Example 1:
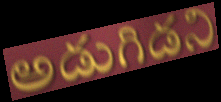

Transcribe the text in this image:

అడుగిడని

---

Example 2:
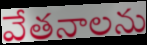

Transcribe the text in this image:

వేతనాలను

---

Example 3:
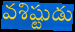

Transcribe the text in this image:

వశిష్టుడు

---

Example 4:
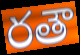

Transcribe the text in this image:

రతౌ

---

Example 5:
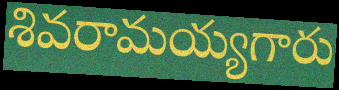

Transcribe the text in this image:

శివరామయ్యగారు